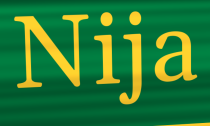
Nija